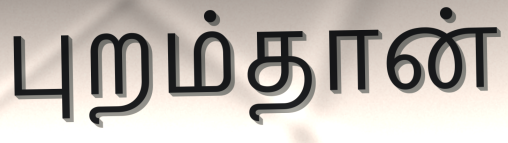
புறம்தான்